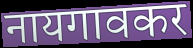
नायगावकर